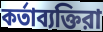
কর্তাব্যক্তিরা